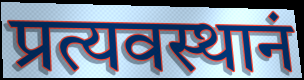
प्रत्यवस्थानं